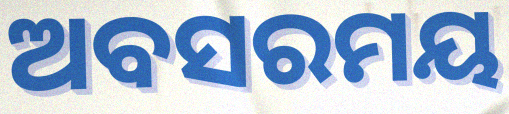
ଅବସରମୟ